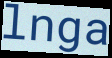
lnga